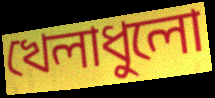
খেলাধুলো